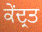
ਕੇਂਦ੍ਰਤ